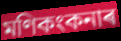
মণিকংকনাৰ